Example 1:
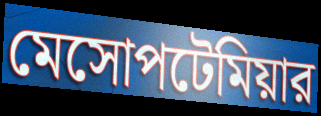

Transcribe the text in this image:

মেসোপটেমিয়ার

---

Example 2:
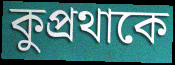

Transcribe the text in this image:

কুপ্রথাকে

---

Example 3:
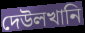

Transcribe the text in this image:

দেউলখানি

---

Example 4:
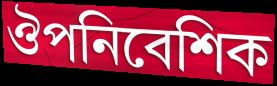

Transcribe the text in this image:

ঔপনিবেশিক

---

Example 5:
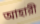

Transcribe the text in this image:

আহারী